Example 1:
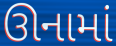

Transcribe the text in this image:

ઊનામાં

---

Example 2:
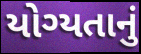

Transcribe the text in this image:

યોગ્યતાનું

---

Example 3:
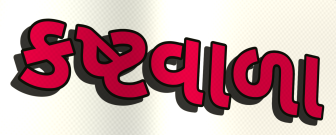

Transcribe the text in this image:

કષ્ટવાળા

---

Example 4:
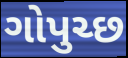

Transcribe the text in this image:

ગોપુચ્છ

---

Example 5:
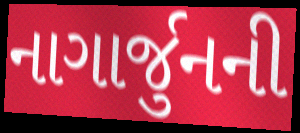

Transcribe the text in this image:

નાગાર્જુનની